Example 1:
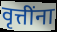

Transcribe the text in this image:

वृत्तींना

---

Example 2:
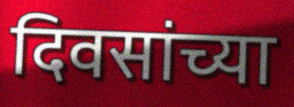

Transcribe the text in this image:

दिवसांच्या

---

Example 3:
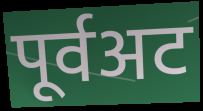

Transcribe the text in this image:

पूर्वअट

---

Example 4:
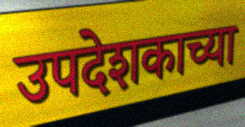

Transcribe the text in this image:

उपदेशकाच्या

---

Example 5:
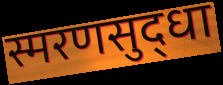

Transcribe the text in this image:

स्मरणसुद्धा